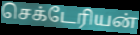
செக்டேரியன்